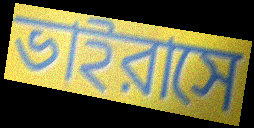
ভাইরাসে